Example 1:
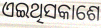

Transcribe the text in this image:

ଏଇଥିସକାଶେ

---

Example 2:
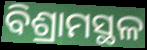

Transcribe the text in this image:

ବିଶ୍ରାମସ୍ଥଳ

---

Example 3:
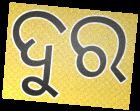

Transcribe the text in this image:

ଦୁର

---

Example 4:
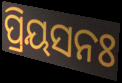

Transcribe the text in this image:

ପ୍ରିୟସନଃ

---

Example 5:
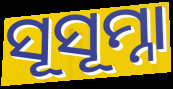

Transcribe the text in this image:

ସୂସୂମ୍ନା